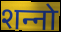
शन्नो